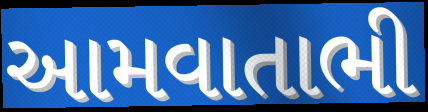
આમવાતાભી